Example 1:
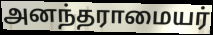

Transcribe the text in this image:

அனந்தராமையர்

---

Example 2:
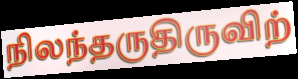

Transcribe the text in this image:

நிலந்தருதிருவிற்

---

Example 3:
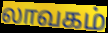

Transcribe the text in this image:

லாவகம்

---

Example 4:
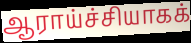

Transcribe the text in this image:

ஆராய்ச்சியாகக்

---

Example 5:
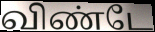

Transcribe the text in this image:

விண்டே